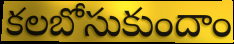
కలబోసుకుందాం